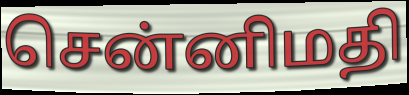
சென்னிமதி